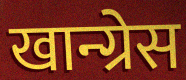
खान्ग्रेस